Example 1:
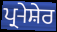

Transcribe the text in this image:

ਪ੍ਰ੍ਮੇਸ਼ੇਰ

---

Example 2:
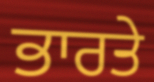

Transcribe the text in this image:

ਭਾਰਤੇ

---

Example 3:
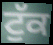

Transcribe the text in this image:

ਟੁੱਕ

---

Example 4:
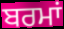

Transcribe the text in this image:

ਬਰਮਾਂ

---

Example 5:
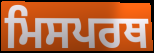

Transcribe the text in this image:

ਮਿਸਪਰਥ